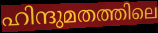
ഹിന്ദുമതത്തിലെ